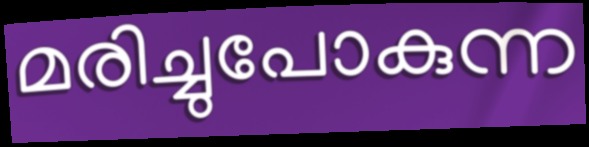
മരിച്ചുപോകുന്ന